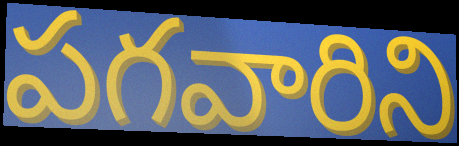
పగవారిని